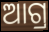
ଆଗ୍ର